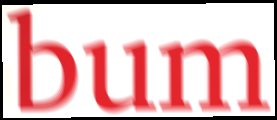
bum